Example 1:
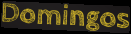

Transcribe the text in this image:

Domingos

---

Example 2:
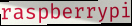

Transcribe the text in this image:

raspberrypi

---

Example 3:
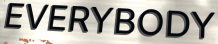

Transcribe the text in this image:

EVERYBODY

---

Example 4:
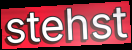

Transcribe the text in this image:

stehst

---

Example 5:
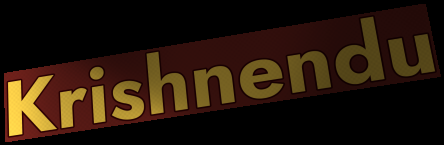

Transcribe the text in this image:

Krishnendu